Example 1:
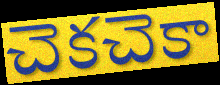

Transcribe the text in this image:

చెకచెకా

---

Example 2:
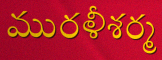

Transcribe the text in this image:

మురళీశర్మ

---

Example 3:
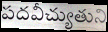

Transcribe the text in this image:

పదవీచ్యుతుని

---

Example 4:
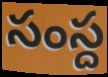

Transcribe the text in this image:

సంస్ద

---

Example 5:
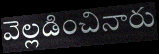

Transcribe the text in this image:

వెల్లడించినారు